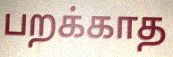
பறக்காத